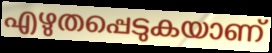
എഴുതപ്പെടുകയാണ്